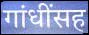
गांधींसह